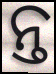
ନ୍ତ